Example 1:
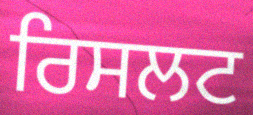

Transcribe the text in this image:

ਰਿਸਲਟ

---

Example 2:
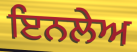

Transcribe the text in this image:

ਇਨਲੇਅ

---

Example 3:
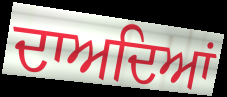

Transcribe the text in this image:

ਦਾਅਦਿਆਂ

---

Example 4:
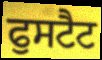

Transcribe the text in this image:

ਫੁਸਟੈਟ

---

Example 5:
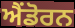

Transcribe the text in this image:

ਐਂਡੋਰਨ